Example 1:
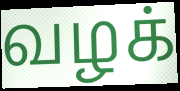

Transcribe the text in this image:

வழக்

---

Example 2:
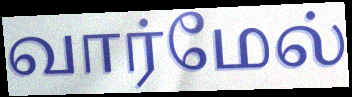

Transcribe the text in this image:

வார்மேல்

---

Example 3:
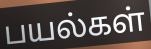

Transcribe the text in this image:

பயல்கள்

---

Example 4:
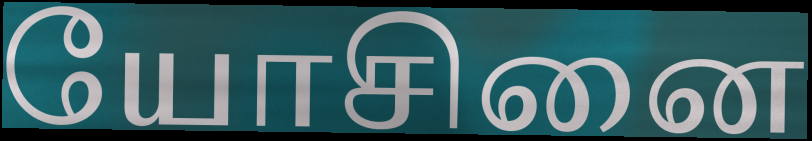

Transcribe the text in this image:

யோசினை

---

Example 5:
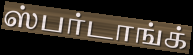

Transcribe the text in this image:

ஸ்பர்டாங்க்